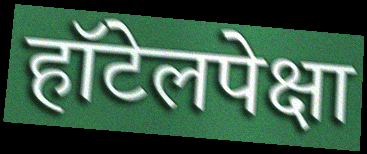
हॉटेलपेक्षा